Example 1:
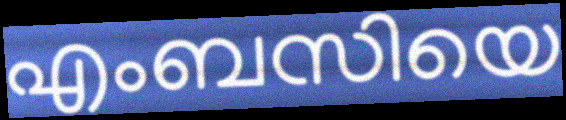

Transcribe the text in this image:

എംബസിയെ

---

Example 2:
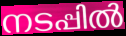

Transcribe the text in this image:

നടപ്പിൽ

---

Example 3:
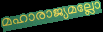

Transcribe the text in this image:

മഹാരാജ്യമല്ലോ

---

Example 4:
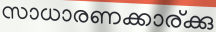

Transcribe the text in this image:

സാധാരണക്കാര്ക്കു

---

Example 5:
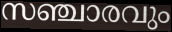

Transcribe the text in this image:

സഞ്ചാരവും